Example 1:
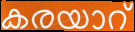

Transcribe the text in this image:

കരയാറ്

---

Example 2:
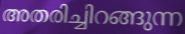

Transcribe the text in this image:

അതരിച്ചിറങ്ങുന്ന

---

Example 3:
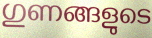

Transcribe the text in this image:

ഗുണങ്ങളുടെ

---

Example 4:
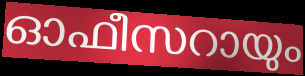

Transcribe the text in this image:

ഓഫീസറായും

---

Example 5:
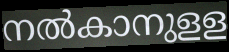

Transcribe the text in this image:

നൽകാനുളള